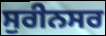
ਸੁਰੀਨਸਰ